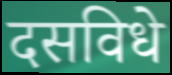
दसविधे